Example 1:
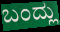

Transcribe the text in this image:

ಬಂದ್ಲು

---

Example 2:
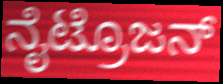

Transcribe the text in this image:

ನೈಟ್ರೊಜನ್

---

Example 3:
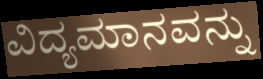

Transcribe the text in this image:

ವಿದ್ಯಮಾನವನ್ನು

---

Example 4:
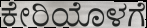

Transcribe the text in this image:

ಕೇರಿಯೊಳಗೆ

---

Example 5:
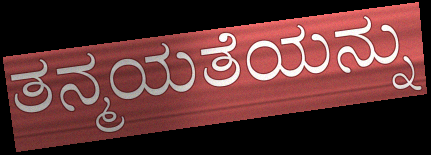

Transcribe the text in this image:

ತನ್ಮಯತೆಯನ್ನು